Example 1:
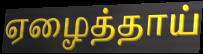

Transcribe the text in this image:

ஏழைத்தாய்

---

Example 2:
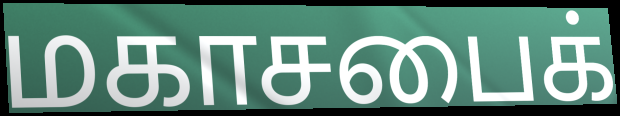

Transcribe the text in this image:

மகாசபைக்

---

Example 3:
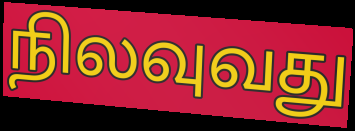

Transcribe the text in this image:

நிலவுவது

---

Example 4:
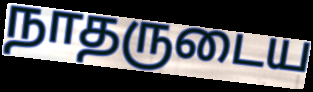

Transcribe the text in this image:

நாதருடைய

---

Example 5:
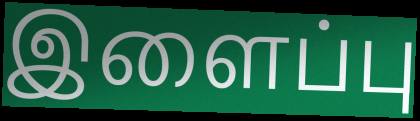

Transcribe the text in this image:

இளைப்பு